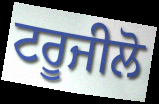
ਟਰੂਜੀਲੋ